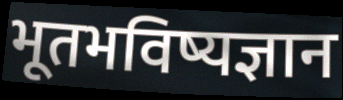
भूतभविष्यज्ञान